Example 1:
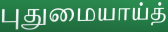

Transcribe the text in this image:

புதுமையாய்த்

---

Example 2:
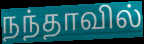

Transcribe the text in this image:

நந்தாவில்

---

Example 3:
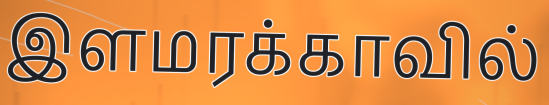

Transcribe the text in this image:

இளமரக்காவில்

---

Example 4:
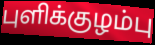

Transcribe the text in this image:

புளிக்குழம்பு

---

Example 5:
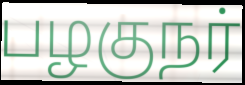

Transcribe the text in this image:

பழகுநர்